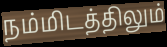
நம்மிடத்திலும்